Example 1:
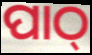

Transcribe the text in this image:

ପାଠ୍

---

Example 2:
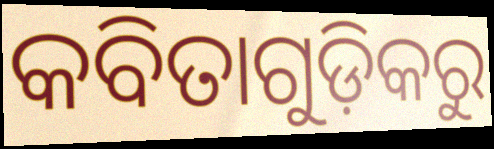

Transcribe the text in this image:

କବିତାଗୁଡ଼ିକରୁ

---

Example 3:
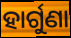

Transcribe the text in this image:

ହାର୍ଗୁଣା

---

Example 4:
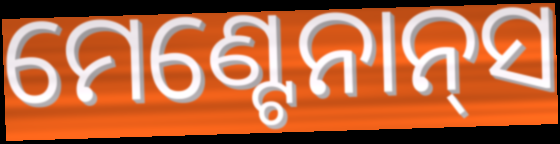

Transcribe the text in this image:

ମେଣ୍ଟେନାନ୍‌ସ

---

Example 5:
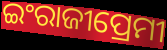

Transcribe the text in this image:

ଇଂରାଜୀପ୍ରେମୀ